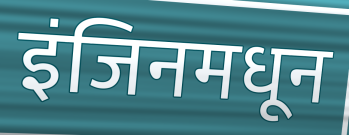
इंजिनमधून